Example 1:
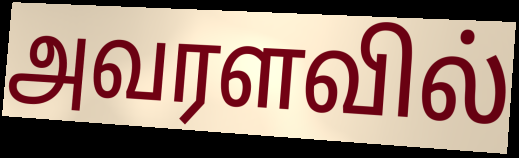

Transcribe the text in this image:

அவரளவில்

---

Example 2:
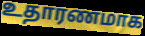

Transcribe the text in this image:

உதாரணமாக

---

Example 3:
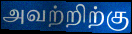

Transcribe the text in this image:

அவற்றிற்கு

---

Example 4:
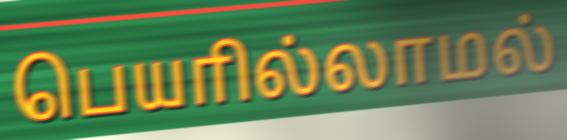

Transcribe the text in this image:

பெயரில்லாமல்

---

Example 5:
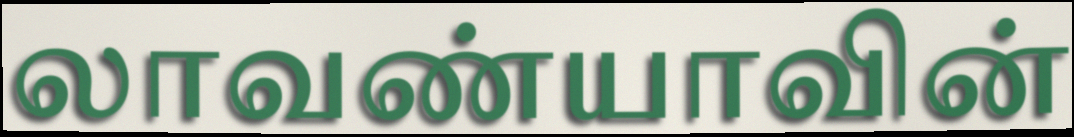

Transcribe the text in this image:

லாவண்யாவின்